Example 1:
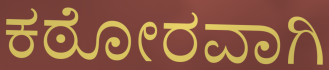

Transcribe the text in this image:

ಕಠೋರವಾಗಿ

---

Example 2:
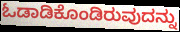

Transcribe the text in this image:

ಓಡಾಡಿಕೊಂಡಿರುವುದನ್ನು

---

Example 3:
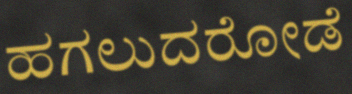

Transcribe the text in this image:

ಹಗಲುದರೋಡೆ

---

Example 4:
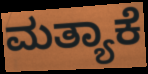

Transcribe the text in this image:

ಮತ್ಯಾಕೆ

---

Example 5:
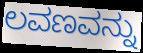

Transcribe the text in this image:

ಲವಣವನ್ನು